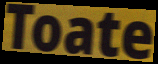
Toate